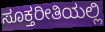
ಸೂಕ್ತರೀತಿಯಲ್ಲಿ